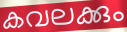
കവലക്കും